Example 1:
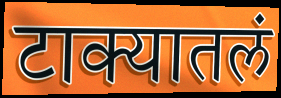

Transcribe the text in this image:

टाक्यातलं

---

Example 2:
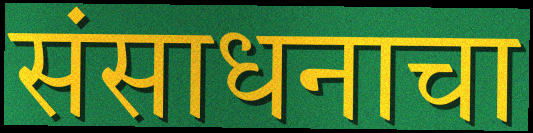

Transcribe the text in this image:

संसाधनाचा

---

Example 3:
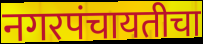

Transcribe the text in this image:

नगरपंचायतीचा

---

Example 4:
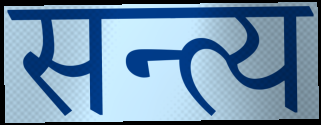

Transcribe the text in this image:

सन्त्य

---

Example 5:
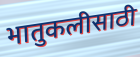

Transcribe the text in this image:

भातुकलीसाठी